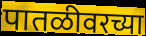
पातळीवरच्या